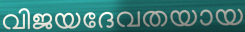
വിജയദേവതയായ